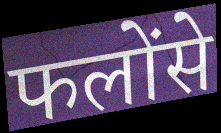
फलोंसे